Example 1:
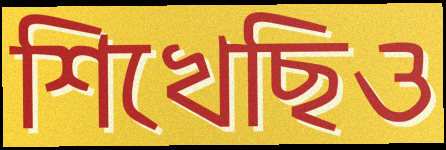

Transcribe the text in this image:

শিখেছিও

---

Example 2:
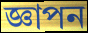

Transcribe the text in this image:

জ্ঞাপন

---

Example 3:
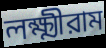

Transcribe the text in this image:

লক্ষ্মীরাম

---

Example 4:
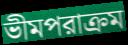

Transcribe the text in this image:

ভীমপরাক্রম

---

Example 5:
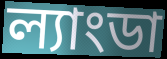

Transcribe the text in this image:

ল্যাংডা